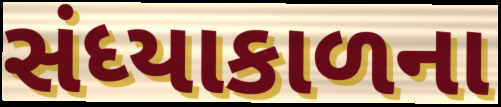
સંધ્યાકાળના